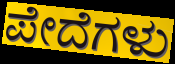
ಪೇದೆಗಳು